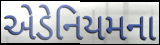
એડેનિયમના